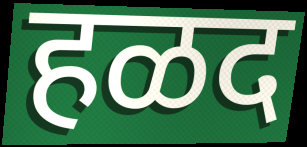
हळद